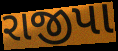
રાજીપા